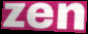
zen